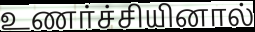
உணர்ச்சியினால்